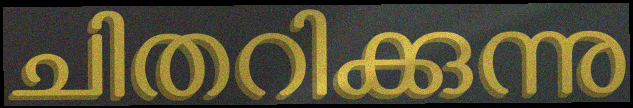
ചിതറിക്കുന്നു